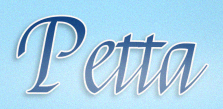
Petta